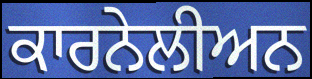
ਕਾਰਨੇਲੀਅਨ